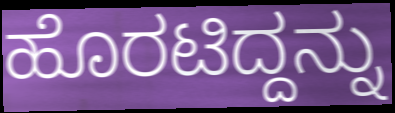
ಹೊರಟಿದ್ದನ್ನು